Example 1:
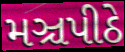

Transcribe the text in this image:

મઞ્ચપીઠે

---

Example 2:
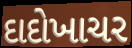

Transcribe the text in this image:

દાદોખાચર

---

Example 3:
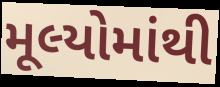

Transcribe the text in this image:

મૂલ્યોમાંથી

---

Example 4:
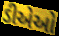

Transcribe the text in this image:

ડીએઓ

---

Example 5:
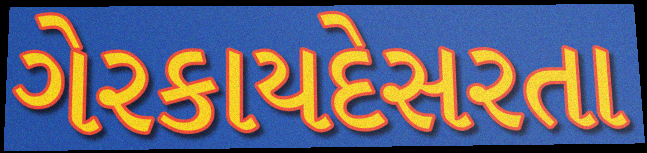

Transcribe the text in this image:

ગેરકાયદેસરતા